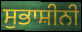
ਸੁਭਾਸ਼ੀਨੀ